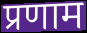
प्रणाम